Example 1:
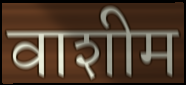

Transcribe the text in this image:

वाशीम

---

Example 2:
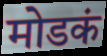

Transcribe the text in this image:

मोडकं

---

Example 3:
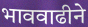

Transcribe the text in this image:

भाववाढीने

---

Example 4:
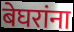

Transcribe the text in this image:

बेघरांना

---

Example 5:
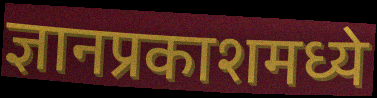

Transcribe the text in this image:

ज्ञानप्रकाशमध्ये